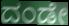
ದಂಡೇ